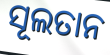
ସୂଲତାନ